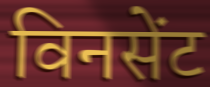
विनसेंट